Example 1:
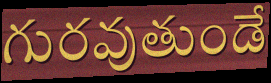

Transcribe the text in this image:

గురవుతుండే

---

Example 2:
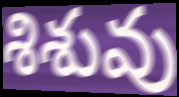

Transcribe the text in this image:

శిశువు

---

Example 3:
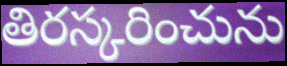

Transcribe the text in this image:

తిరస్కరించును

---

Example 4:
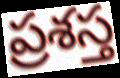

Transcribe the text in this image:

ప్రశస్త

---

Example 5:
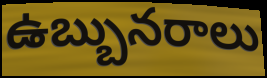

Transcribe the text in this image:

ఉబ్బునరాలు